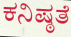
ಕನಿಷ್ಠತೆ